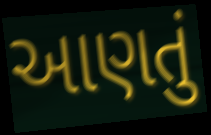
આણતું